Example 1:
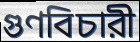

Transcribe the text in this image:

গুণবিচারী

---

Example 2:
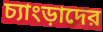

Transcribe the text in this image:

চ্যাংড়াদের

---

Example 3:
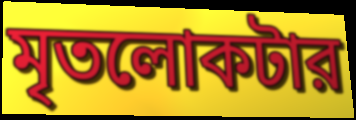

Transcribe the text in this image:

মৃতলোকটার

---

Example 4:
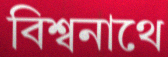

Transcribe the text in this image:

বিশ্বনাথে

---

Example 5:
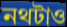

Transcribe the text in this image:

নথটাও